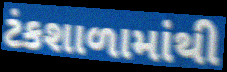
ટંકશાળામાંથી